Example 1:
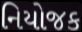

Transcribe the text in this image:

નિયોજક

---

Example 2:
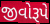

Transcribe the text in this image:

જીવોરૂપે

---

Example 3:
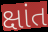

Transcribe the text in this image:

ક્ષાંત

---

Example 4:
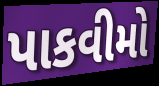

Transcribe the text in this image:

પાકવીમો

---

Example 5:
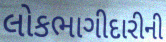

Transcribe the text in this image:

લોકભાગીદારીની